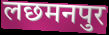
लछमनपुर